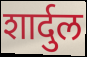
शार्दुल